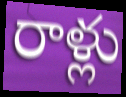
రాళ్లు